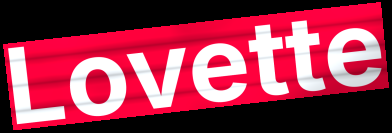
Lovette